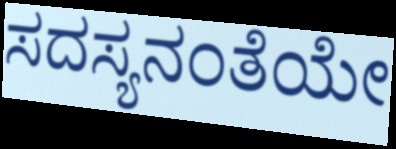
ಸದಸ್ಯನಂತೆಯೇ